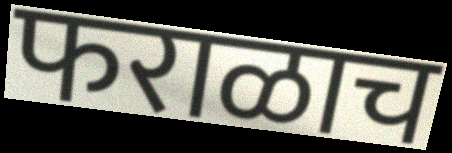
फराळाच